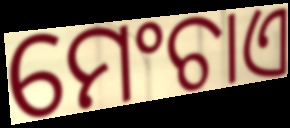
ମେଂଚାଏ